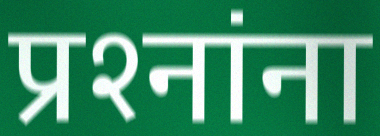
प्रश्नांना